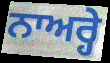
ਨਾਅਰ੍ਹੇ